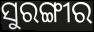
ସୁରଙ୍ଗୀର